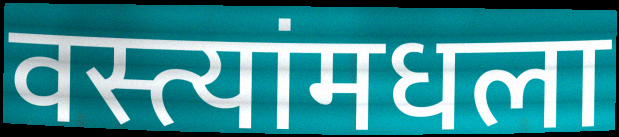
वस्त्यांमधला